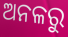
ଅନଳରୁ